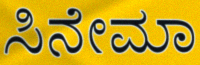
ಸಿನೇಮಾ